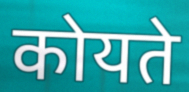
कोयते